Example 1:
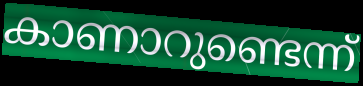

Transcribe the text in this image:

കാണാറുണ്ടെന്ന്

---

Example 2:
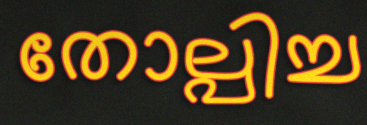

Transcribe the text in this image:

തോല്പിച്ച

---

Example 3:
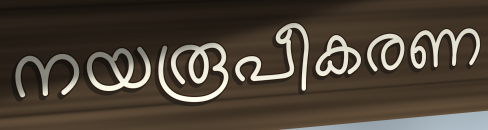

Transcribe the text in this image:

നയരൂപീകരണ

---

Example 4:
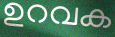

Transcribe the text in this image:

ഉറവക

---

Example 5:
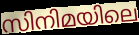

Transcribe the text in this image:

സിനിമയിലെ